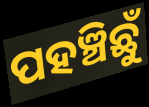
ପହଞ୍ଚିଛୁଁ